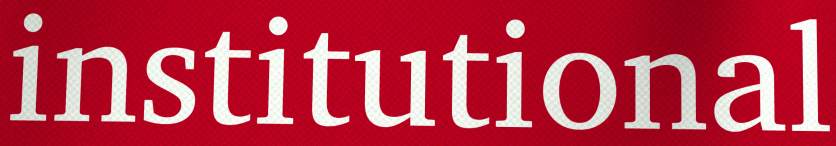
institutional